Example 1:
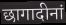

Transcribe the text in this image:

छागादीनां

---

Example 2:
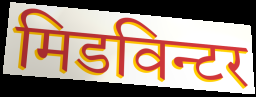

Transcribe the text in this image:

मिडविन्टर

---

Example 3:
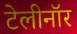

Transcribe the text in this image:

टेलीनॉर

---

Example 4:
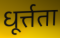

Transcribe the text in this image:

धूर्त्तता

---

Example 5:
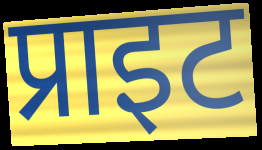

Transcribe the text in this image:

प्राइट